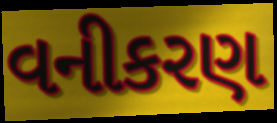
વનીકરણ